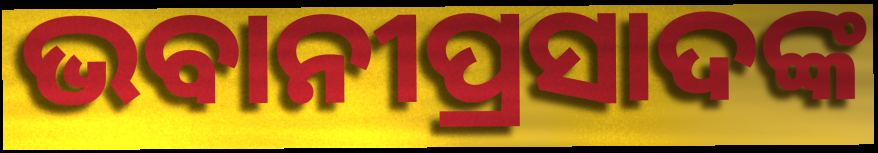
ଭବାନୀପ୍ରସାଦଙ୍କ